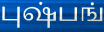
புஷ்பங்